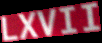
LXVII